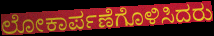
ಲೋಕಾರ್ಪಣೆಗೊಳಿಸಿದರು